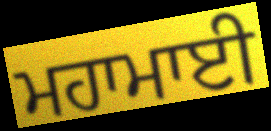
ਮਹਾਮਾਈ